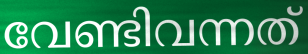
വേണ്ടിവന്നത്